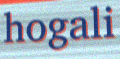
hogali